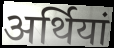
अर्थियां